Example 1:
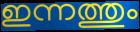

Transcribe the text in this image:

ഇന്നത്തും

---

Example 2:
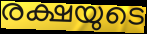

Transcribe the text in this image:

രക്ഷയുടെ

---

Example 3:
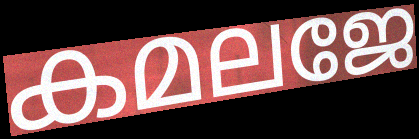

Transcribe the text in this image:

കമലജേ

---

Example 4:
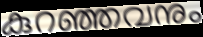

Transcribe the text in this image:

കുറഞ്ഞവനും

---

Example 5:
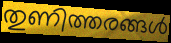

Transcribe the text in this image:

തുണിത്തരങ്ങൾ